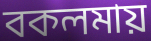
বকলমায়